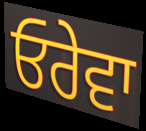
ਓਰੇਵਾ